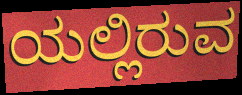
ಯಲ್ಲಿರುವ